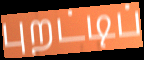
புறட்டிப்